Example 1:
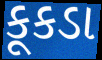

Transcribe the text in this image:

કૂકડા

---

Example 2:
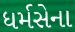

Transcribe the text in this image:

ધર્મસેના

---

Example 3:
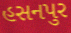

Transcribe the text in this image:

હસનપુર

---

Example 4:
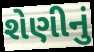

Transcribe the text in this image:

શેણીનું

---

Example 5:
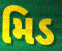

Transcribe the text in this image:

મિડ